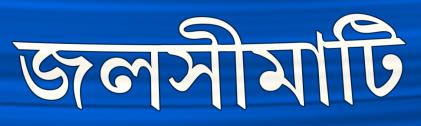
জলসীমাটি